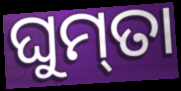
ଘୁମ୍‌ତା